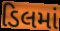
ડિલમાં